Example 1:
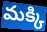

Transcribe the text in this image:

మక్కి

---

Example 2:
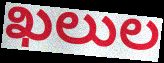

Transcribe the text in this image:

ఖలుల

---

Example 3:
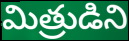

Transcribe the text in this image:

మిత్రుడిని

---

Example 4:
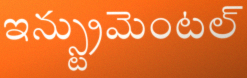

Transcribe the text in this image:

ఇన్స్ట్రుమెంటల్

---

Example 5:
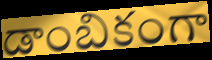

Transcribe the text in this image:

డాంబికంగా